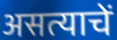
असत्याचें